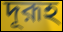
দূরূহ